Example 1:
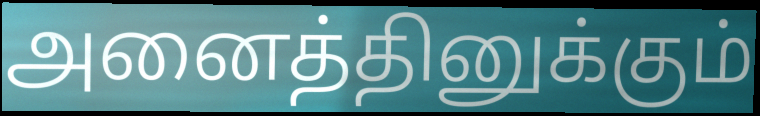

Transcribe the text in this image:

அனைத்தினுக்கும்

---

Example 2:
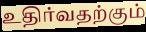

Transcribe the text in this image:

உதிர்வதற்கும்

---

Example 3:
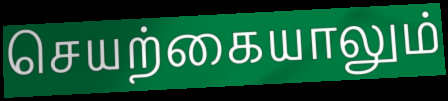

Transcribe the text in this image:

செயற்கையாலும்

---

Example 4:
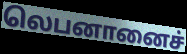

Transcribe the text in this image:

லெபனானைச்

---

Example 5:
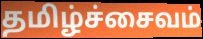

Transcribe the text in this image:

தமிழ்ச்சைவம்